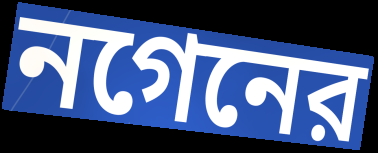
নগেনের